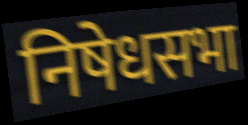
निषेधसभा